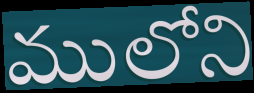
ములోని